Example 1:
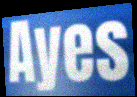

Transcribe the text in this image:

Ayes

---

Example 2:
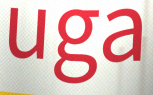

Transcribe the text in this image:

uga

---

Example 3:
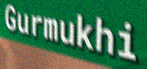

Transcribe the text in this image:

Gurmukhi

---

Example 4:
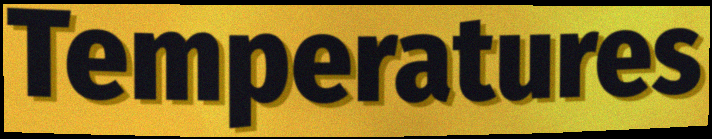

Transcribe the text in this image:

Temperatures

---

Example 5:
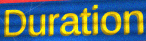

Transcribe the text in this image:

Duration